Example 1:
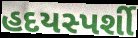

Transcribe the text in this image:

હદયસ્પર્શી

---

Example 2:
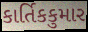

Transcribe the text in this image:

કાર્તિકકુમાર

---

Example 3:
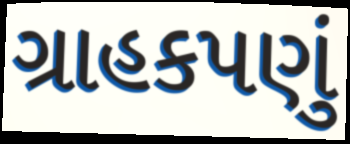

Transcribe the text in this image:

ગ્રાહકપણું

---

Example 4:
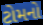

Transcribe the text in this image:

ટોમનો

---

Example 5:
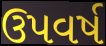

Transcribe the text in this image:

ઉપવર્ષ